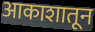
आकाशातून